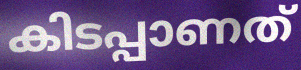
കിടപ്പാണത്